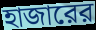
হাজারের